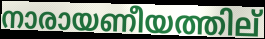
നാരായണീയത്തില്